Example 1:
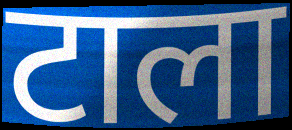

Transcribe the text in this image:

टाला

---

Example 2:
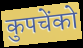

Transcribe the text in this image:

कुपचेंको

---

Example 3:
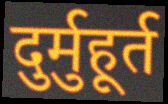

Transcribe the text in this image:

दुर्मुहूर्त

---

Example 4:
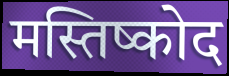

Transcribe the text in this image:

मस्तिष्कोद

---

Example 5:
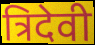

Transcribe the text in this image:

त्रिदेवी